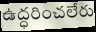
ఉద్ధరించలేరు